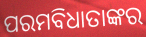
ପରମବିଧାତାଙ୍କର